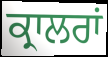
ਕ੍ਰਾਲਰਾਂ